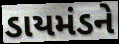
ડાયમંડને